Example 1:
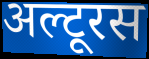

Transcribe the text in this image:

अल्टूरस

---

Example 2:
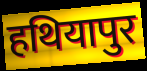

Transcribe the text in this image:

हथियापुर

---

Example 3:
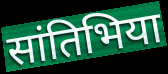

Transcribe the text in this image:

सांतिभिया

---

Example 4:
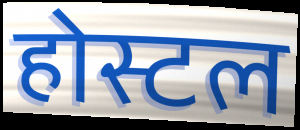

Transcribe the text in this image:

होस्टल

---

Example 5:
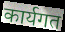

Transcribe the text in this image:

कार्यगत